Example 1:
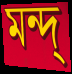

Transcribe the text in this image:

মন্দ্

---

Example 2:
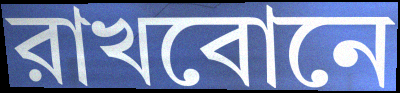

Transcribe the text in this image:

রাখবোনে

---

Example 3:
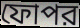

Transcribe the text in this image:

ফোপর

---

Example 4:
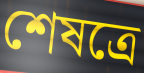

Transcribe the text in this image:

শেষত্রে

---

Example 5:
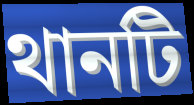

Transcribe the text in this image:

থানটি